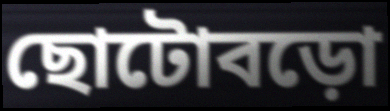
ছোটোবড়ো